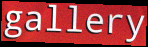
gallery